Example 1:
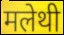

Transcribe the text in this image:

मलेथी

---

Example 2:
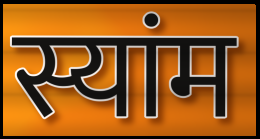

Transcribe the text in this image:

स्यांम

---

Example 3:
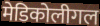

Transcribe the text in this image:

मेडिकोलीगल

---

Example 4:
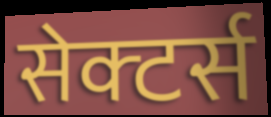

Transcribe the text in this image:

सेक्‍टर्स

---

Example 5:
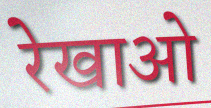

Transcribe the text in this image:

रेखाओ